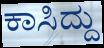
ಕಾಸಿದ್ದು